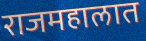
राजमहालात